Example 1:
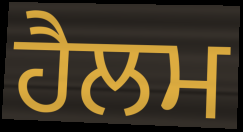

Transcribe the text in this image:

ਹੈਲਮ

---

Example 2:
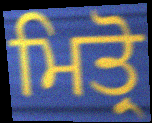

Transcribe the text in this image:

ਮਿਤ੍ਰੋ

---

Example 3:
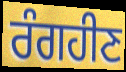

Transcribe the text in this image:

ਰੰਗਹੀਣ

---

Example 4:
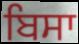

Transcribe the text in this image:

ਬਿਸਾ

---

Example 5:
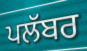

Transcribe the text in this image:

ਪਲੱਬਰ